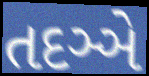
તદઞ્ઞે